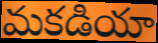
మకడియా